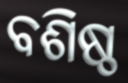
ବଶିଷ୍ଠ